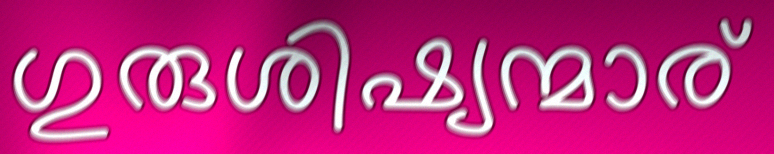
ഗുരുശിഷ്യന്മാര്